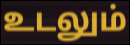
உடலும்